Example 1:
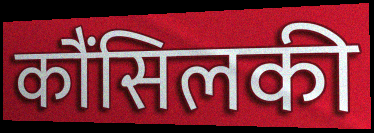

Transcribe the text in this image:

कौंसिलकी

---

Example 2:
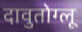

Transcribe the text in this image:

दावुतोग्लू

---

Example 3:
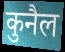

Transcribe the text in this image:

कुनैल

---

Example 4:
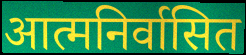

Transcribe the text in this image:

आत्मनिर्वासित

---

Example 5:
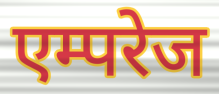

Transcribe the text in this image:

एम्परेज